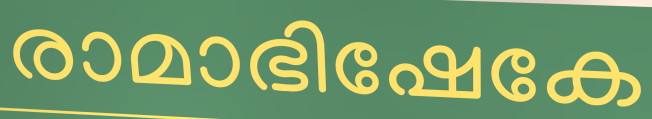
രാമാഭിഷേകേ